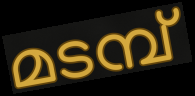
മടമ്പ്